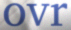
ovr